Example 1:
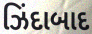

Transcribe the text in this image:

ઝિંદાબાદ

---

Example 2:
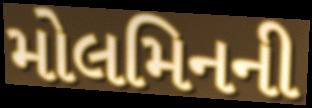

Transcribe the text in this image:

મોલમિનની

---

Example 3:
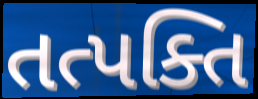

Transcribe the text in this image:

તત્પક્તિ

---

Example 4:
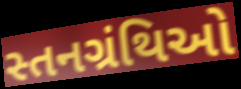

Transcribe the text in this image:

સ્તનગ્રંથિઓ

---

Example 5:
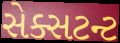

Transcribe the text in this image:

સેક્સટન્ટ